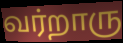
வர்றாரு